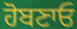
ਹੋਬਣਾਓ